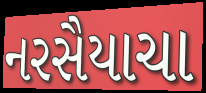
નરસૈયાચા